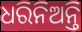
ଧରିନିଅନ୍ତି